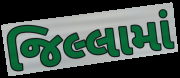
જિલ્લામાં